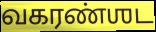
வகரண்ஶட